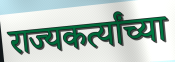
राज्यकर्त्यांच्या